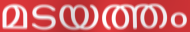
മടയത്തം